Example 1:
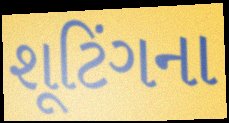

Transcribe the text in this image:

શૂટિંગના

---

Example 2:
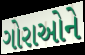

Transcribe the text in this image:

ગોરાઓને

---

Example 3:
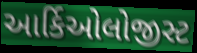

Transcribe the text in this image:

આર્કિઓલોજીસ્ટ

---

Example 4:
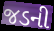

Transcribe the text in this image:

જડની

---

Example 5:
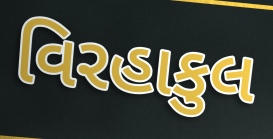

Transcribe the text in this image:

વિરહાકુલ